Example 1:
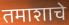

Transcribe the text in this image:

तमाशाचे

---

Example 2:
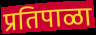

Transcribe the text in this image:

प्रतिपाळा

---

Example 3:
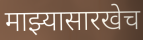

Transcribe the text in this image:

माझ्यासारखेच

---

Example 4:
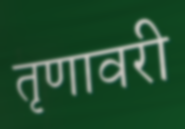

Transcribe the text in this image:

तृणावरी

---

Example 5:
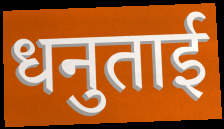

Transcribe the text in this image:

धनुताई